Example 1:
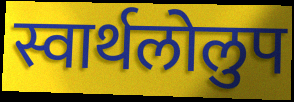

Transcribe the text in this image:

स्वार्थलोलुप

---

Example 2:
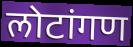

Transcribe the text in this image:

लोटांगण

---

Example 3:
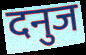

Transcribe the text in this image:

दनुज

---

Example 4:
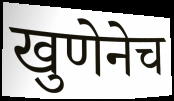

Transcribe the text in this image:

खुणेनेच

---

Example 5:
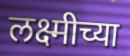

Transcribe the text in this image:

लक्ष्मीच्या